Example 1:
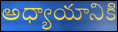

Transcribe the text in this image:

అధ్యాయానికి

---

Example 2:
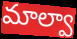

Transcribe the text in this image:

మాల్వా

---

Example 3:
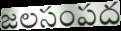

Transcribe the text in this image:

జలసంపద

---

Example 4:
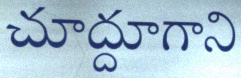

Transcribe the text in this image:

చూద్దూగాని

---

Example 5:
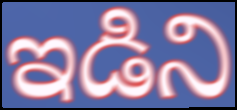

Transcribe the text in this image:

ఇడిని